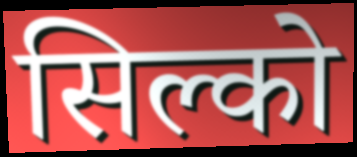
सिल्को